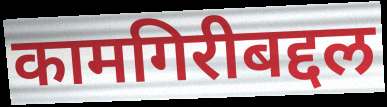
कामगिरीबद्दल